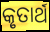
କୃତାର୍ଥ